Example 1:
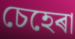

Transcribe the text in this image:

চেহেৰা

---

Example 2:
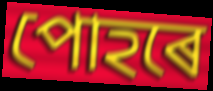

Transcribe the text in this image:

পোহৰে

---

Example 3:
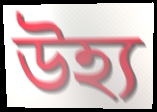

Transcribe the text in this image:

উহ্য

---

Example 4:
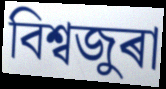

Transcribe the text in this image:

বিশ্বজুৰা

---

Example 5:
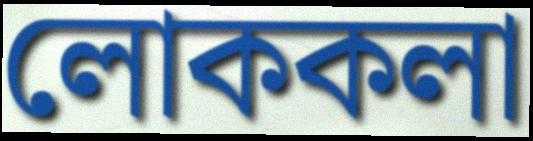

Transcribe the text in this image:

লোককলা